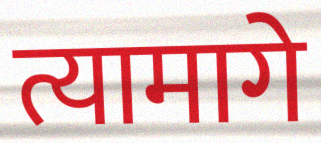
त्यामागे